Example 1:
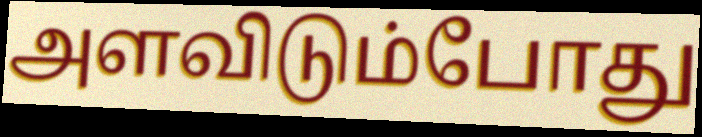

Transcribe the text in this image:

அளவிடும்போது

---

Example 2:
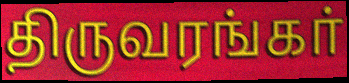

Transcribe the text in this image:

திருவரங்கர்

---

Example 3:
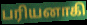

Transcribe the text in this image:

பரியனாகி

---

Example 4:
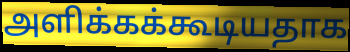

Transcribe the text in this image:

அளிக்கக்கூடியதாக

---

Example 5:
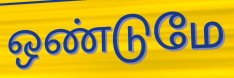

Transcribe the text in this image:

ஒண்டுமே